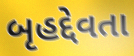
બૃહદ્દેવતા